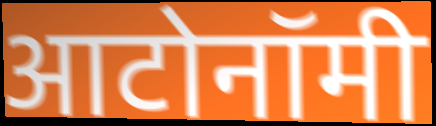
आटोनॉमी